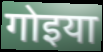
गोइया